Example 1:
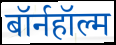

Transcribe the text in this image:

बॉर्नहॉल्म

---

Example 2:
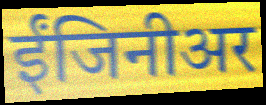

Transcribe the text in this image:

ईंजिनीअर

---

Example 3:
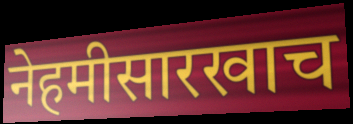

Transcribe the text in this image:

नेहमीसारखाच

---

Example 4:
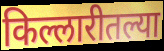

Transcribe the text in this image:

किल्लारीतल्या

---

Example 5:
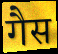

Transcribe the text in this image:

गैस